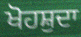
ਖੋਹਸ਼ੁਦਾ